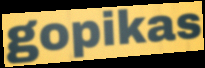
gopikas